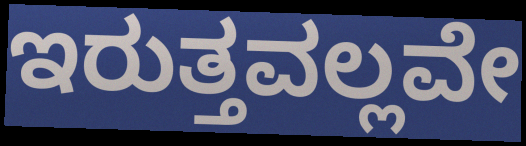
ಇರುತ್ತವಲ್ಲವೇ